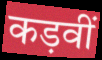
कड़वीं